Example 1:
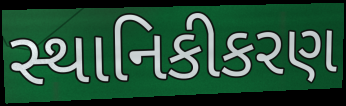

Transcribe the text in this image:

સ્થાનિકીકરણ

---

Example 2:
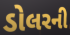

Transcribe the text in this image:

ડોલરની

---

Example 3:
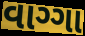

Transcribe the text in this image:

વાગ્ગા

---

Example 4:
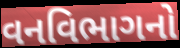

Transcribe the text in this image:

વનવિભાગનો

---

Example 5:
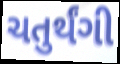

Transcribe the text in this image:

ચતુર્થંગી